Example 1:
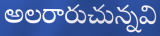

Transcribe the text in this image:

అలరారుచున్నవి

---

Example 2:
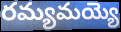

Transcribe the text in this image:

రమ్యమయ్యె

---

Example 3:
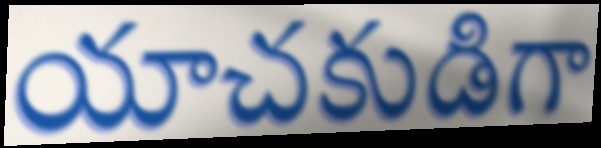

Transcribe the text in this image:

యాచకుడిగా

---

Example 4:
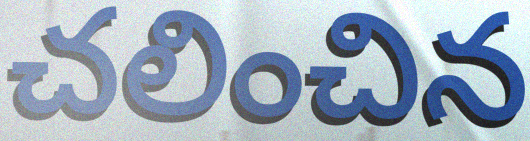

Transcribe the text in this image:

చలించిన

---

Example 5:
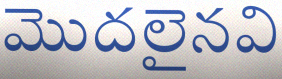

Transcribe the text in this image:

మొదలైనవి